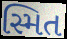
સ્મિત